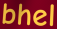
bhel